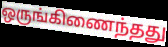
ஒருங்கிணைந்தது